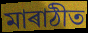
মাৰাঠীত